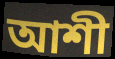
আশী